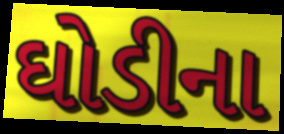
ઘોડીના